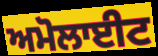
ਅਮੋਲਾਈਟ